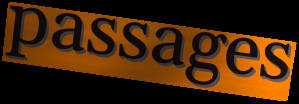
passages